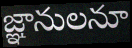
జ్ఞానులనూ